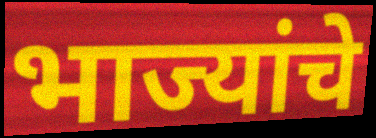
भाज्यांचे